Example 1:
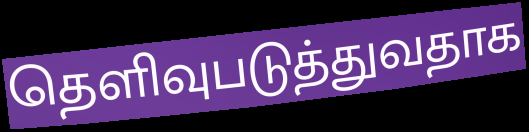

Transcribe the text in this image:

தெளிவுபடுத்துவதாக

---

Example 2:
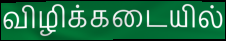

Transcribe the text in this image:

விழிக்கடையில்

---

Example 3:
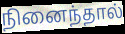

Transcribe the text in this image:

நினைந்தால்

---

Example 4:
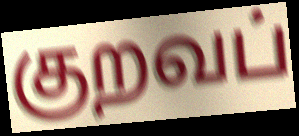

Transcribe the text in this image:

குறவப்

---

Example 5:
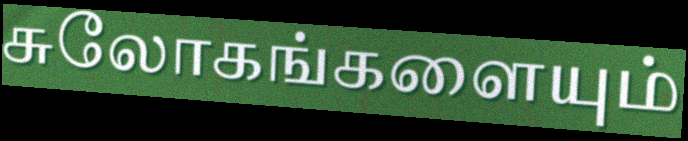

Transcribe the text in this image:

சுலோகங்களையும்